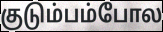
குடும்பம்போல